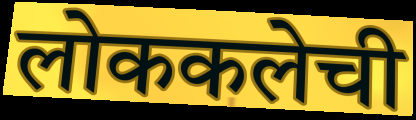
लोककलेची